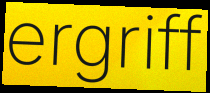
ergriff